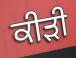
ਕੀੜੀ